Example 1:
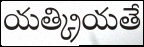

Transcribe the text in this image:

యత్క్రియతే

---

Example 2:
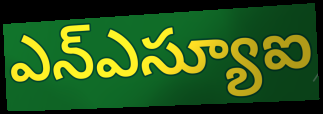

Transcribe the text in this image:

ఎన్ఎస్యూఐ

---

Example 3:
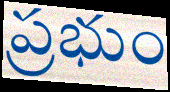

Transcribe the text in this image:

ప్రభుం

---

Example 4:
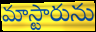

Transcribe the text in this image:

మాస్టారును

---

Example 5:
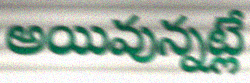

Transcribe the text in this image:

అయివున్నట్లే